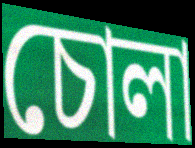
চোলা